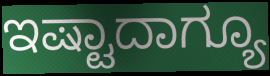
ಇಷ್ಟಾದಾಗ್ಯೂ